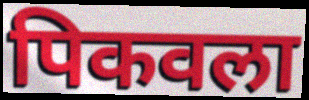
पिकवला